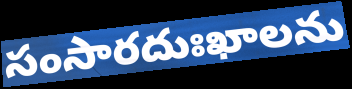
సంసారదుఃఖాలను